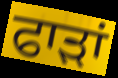
ਫਾੜਾਂ